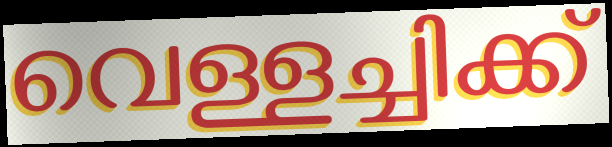
വെള്ളച്ചിക്ക്